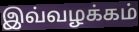
இவ்வழக்கம்